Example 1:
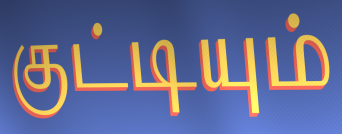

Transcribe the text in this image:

குட்டியும்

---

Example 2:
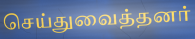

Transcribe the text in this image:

செய்துவைத்தனர்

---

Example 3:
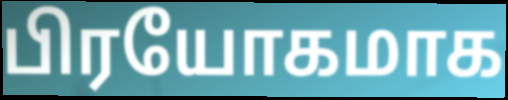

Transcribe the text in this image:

பிரயோகமாக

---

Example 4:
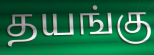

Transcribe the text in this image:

தயங்கு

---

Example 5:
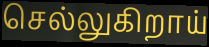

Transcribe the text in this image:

செல்லுகிறாய்